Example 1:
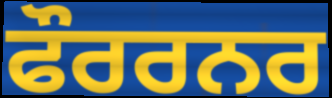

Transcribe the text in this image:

ਫੌਰਰਨਰ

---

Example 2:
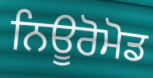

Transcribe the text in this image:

ਨਿਊਰੋਮੋਡ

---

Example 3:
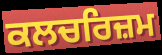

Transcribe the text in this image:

ਕਲਚਰਿਜ਼ਮ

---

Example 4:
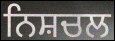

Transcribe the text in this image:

ਨਿਸ਼ਚਲ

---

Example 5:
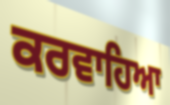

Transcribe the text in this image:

ਕਰਵਾਹਿਆ